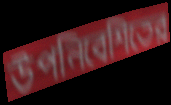
উপনিবেশিতের